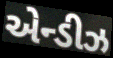
એન્ડીઝ